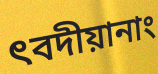
ৎবদীয়ানাং